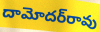
దామోదర్‌రావు